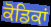
ਕੋਡਿਕਾਂ